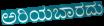
ಅರಿಯಬಾರದು